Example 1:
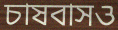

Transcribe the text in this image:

চাষবাসও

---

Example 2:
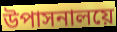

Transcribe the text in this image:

উপাসনালয়ে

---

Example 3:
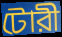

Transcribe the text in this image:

টোরী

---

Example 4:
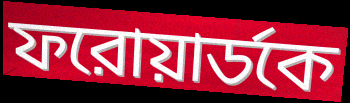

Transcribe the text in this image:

ফরোয়ার্ডকে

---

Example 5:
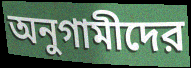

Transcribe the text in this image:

অনুগামীদের